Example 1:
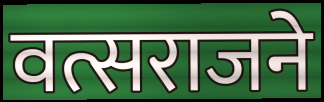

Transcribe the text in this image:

वत्सराजने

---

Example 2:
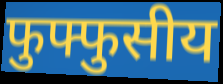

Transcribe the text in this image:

फुफ्फुसीय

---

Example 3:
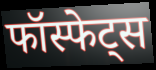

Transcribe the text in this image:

फॉस्फेट्स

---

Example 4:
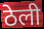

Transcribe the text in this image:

ठेली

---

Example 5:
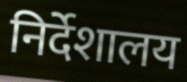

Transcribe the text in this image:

निर्देशालय